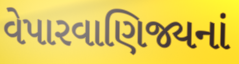
વેપારવાણિજ્યનાં